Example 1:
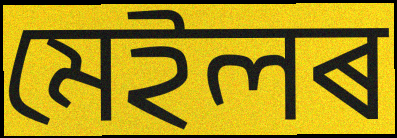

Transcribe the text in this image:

মেইলৰ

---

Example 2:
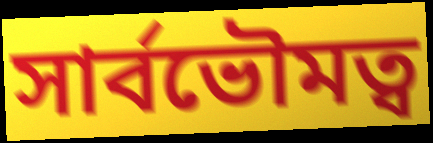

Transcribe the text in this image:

সাৰ্বভৌমত্ব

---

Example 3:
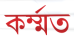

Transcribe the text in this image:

কৰ্ম্মত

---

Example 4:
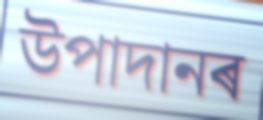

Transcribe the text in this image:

উপাদানৰ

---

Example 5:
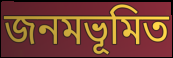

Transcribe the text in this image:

জনমভূমিত